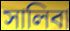
সালিবা